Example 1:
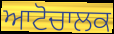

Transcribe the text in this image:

ਆਟੋਚਾਲਕ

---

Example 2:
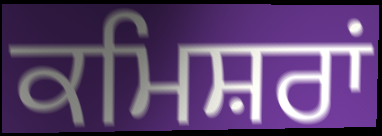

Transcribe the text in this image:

ਕਮਿਸ਼ਰਾਂ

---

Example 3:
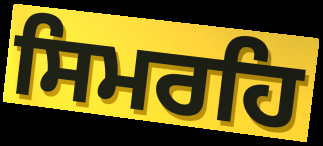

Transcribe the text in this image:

ਸਿਮਰਹਿ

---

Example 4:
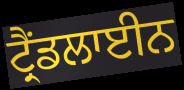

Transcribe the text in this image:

ਟ੍ਰੈਂਡਲਾਈਨ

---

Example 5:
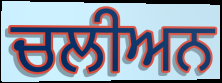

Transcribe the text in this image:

ਚਲੀਅਨ